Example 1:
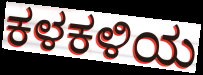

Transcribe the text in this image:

ಕಳಕಳಿಯ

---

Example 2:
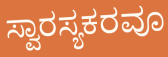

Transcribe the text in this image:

ಸ್ವಾರಸ್ಯಕರವೂ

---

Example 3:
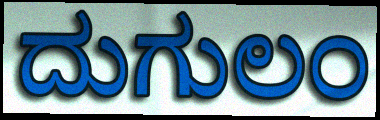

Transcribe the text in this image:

ದುಗುಲಂ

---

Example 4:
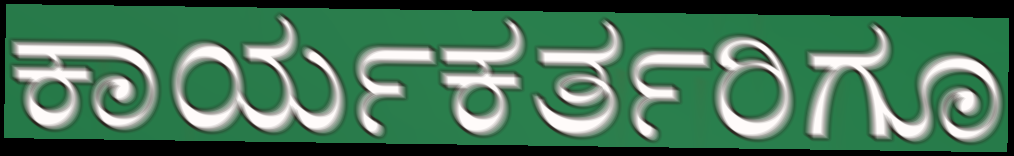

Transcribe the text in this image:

ಕಾರ್ಯಕರ್ತರಿಗೂ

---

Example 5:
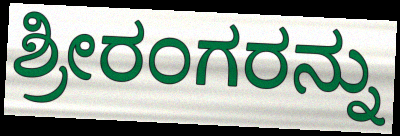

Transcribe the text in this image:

ಶ್ರೀರಂಗರನ್ನು